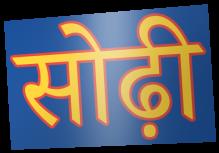
सोढ़ी